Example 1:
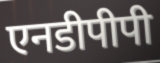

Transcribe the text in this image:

एनडीपीपी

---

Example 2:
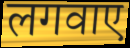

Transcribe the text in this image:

लगवाए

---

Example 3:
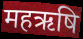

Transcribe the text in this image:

महऋषि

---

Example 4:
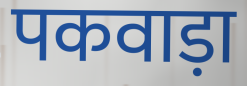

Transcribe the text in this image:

पकवाड़ा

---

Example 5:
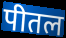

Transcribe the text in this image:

पीतल